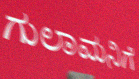
ಗುಲಾಮನಿಗೆ